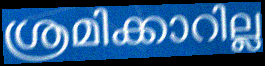
ശ്രമിക്കാറില്ല